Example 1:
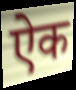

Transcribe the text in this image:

ऐक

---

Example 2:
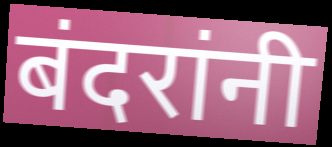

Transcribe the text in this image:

बंदरांनी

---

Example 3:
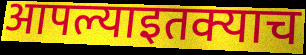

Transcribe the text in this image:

आपल्याइतक्याच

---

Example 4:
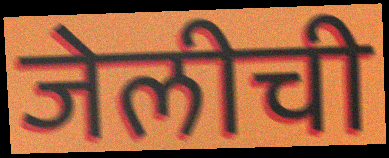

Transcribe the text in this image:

जेलीची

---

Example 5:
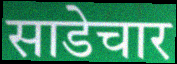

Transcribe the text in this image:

साडेचार